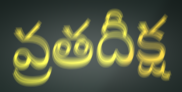
వ్రతదీక్ష